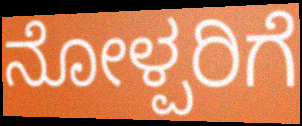
ನೋಳ್ಪರಿಗೆ